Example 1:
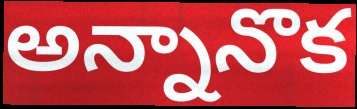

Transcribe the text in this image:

అన్నానొక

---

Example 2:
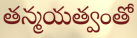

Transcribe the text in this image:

తన్మయత్వంతో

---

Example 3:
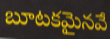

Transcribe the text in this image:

బూటకమైనవే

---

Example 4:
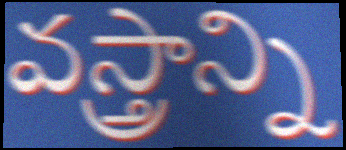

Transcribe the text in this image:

వస్త్రాన్ని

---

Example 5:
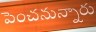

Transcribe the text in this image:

పెంచనున్నారు